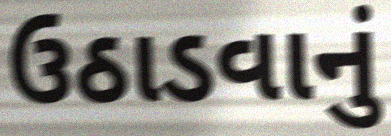
ઉઠાડવાનું